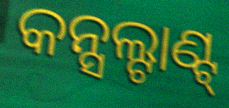
କନ୍ସଲ୍ଟାଣ୍ଟ୍